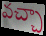
వచ్చా